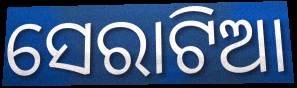
ସେରାଟିଆ